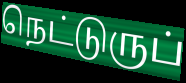
நெட்டுருப்